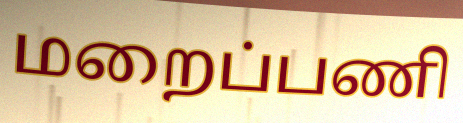
மறைப்பணி